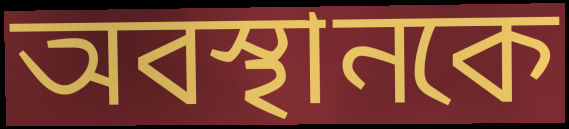
অবস্থানকে